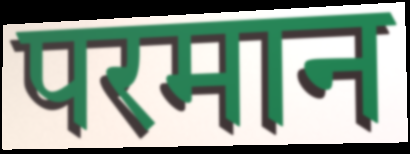
परमान